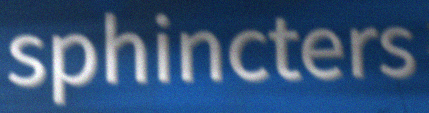
sphincters